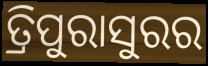
ତ୍ରିପୁରାସୁରର